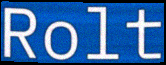
Rolt